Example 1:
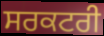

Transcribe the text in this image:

ਸਰਕਟਰੀ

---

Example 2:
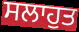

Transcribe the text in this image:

ਸਲਾਹੁਤ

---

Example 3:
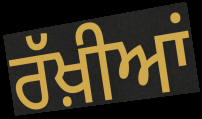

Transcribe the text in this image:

ਰੱਖ਼ੀਆਂ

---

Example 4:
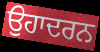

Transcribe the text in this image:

ਉਹਾਦਰਨ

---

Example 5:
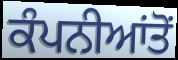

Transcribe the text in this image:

ਕੰਪਨੀਆਂਤੋਂ